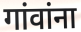
गांवांना